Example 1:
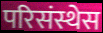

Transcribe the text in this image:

परिसंस्थेस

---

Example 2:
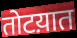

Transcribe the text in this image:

तोटय़ात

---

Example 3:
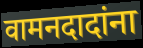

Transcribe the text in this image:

वामनदादांना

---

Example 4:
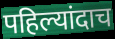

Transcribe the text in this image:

पहिल्यांदाच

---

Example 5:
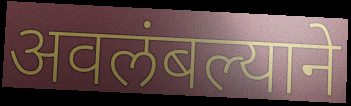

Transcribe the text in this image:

अवलंबल्याने